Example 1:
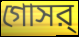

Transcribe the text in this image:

গোসর্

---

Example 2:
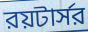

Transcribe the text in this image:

রয়টার্সর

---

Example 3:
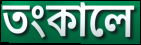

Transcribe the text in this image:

তংকালে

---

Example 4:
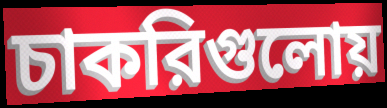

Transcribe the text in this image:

চাকরিগুলোয়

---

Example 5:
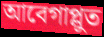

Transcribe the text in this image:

আবেগাপ্লুত